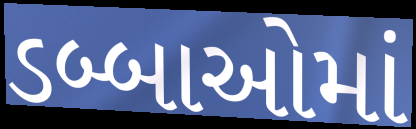
ડબ્બાઓમાં